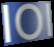
IOI